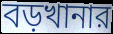
বড়খানার